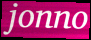
jonno